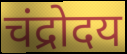
चंद्रोदय